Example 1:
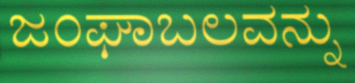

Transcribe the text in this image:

ಜಂಘಾಬಲವನ್ನು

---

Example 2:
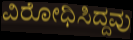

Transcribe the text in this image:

ವಿರೋಧಿಸಿದ್ದವು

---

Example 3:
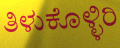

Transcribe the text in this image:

ತಿಳುಕೊಳ್ಳಿರಿ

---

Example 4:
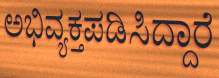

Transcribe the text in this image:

ಅಭಿವ್ಯಕ್ತಪಡಿಸಿದ್ದಾರೆ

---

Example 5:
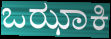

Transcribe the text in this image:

ಒಝಾಕಿ